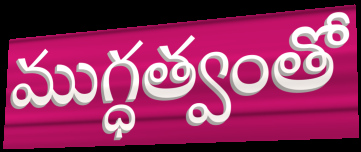
ముగ్ధత్వంతో